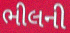
ભીલની